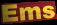
Ems